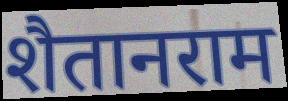
शैतानराम